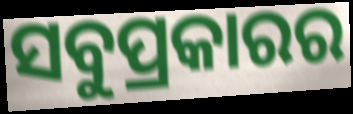
ସବୁପ୍ରକାରର